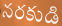
నరకుడి